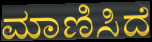
ಮಾಣಿಸಿದೆ